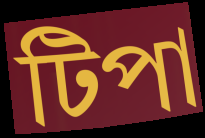
টিপা